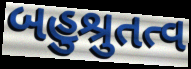
બહુશ્રુતત્વ